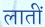
लातीं